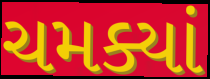
ચમક્યાં